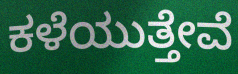
ಕಳೆಯುತ್ತೇವೆ